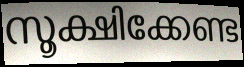
സൂക്ഷിക്കേണ്ട